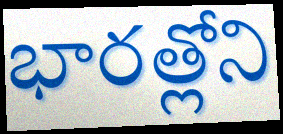
భారత్లోని